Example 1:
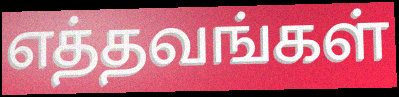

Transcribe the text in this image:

எத்தவங்கள்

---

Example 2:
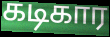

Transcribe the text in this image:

கடிகார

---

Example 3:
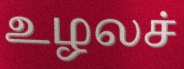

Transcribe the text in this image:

உழலச்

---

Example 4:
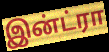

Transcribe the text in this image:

இன்ட்ரா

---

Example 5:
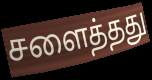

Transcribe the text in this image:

சளைத்தது